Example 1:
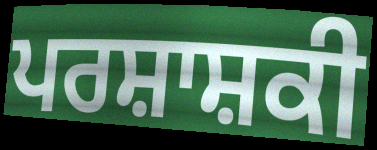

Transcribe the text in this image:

ਪਰਸ਼ਾਸ਼ਕੀ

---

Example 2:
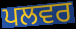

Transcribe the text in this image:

ਪਲਵਰ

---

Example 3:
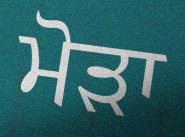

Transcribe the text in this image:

ਮੋੜਾ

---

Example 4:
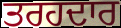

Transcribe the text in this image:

ਤਰਹਦਾਰ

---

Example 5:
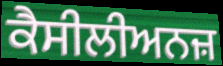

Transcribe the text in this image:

ਕੈਸੀਲੀਅਨਜ਼